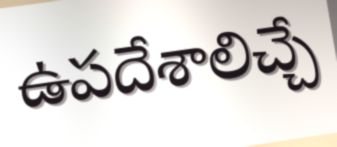
ఉపదేశాలిచ్చే